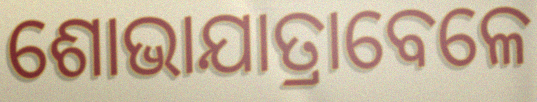
ଶୋଭାଯାତ୍ରାବେଳେ